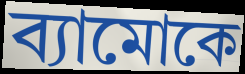
ব্যামোকে